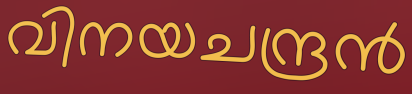
വിനയചന്ദ്രൻ